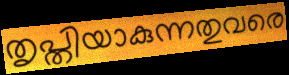
തൃപ്തിയാകുന്നതുവരെ